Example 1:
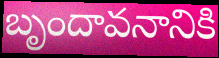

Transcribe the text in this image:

బృందావనానికి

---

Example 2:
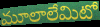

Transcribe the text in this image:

మూలాలేమిటో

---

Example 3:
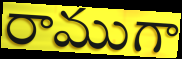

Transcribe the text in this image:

రాముగా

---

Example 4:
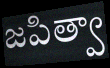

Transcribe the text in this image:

జపిత్వా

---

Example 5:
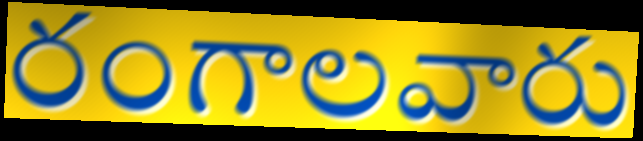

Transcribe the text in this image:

రంగాలవారు